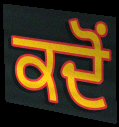
ਕਦੋਂ